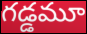
గడ్డమూ